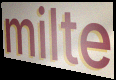
milte